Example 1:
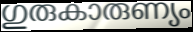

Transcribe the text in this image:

ഗുരുകാരുണ്യം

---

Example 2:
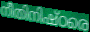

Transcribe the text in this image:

നീതിനിഷ്ഠരെ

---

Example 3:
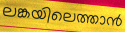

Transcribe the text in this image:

ലങ്കയിലെത്താൻ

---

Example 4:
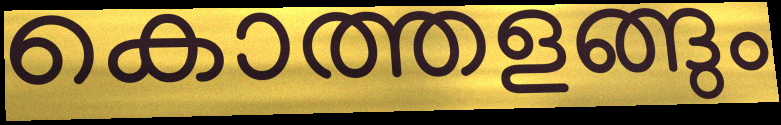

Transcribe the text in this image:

കൊത്തളങ്ങും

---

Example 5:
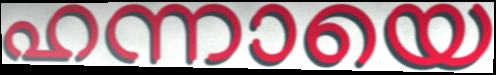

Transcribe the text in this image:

ഹന്നായെ